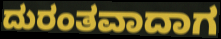
ದುರಂತವಾದಾಗ